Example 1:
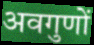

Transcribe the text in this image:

अवगुणों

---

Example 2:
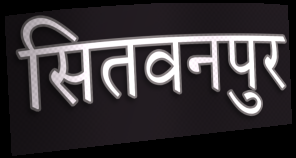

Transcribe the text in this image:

सितवनपुर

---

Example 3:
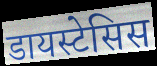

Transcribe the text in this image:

डायस्टेसिस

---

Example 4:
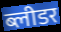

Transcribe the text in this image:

ब्लीडर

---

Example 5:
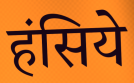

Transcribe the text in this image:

हंसिये